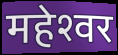
महेश्वर